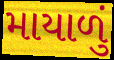
માયાળું